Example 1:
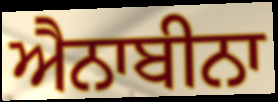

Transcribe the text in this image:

ਐਨਾਬੀਨਾ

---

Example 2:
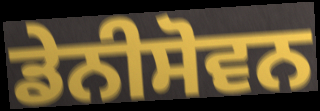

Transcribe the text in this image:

ਡੇਨੀਸੋਵਨ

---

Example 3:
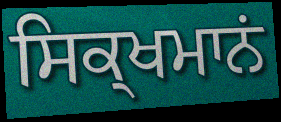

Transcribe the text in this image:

ਸਿਕ੍ਖਮਾਨਂ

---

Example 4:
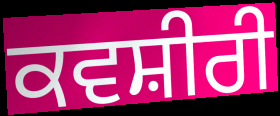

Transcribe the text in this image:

ਕਵਸ਼ੀਰੀ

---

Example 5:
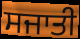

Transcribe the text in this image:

ਸਜਾਤੀ